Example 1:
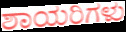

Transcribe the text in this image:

ಶಾಯರಿಗಳು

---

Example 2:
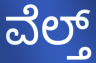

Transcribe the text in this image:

ವೆಲ್ತ್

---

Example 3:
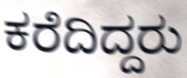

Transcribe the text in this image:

ಕರೆದಿದ್ದರು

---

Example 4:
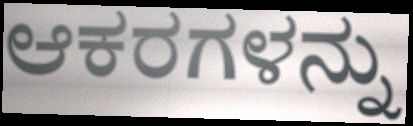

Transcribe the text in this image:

ಆಕರಗಳನ್ನು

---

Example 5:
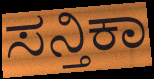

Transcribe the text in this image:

ಸನ್ತಿಕಾ